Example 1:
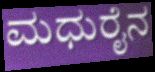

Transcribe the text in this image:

ಮಧುರೈನ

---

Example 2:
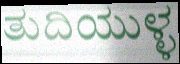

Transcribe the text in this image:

ತುದಿಯುಳ್ಳ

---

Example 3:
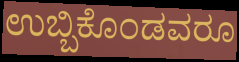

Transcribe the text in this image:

ಉಬ್ಬಿಕೊಂಡವರೂ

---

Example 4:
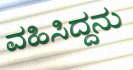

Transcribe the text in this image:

ವಹಿಸಿದ್ದನು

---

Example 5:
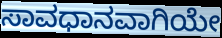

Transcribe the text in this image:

ಸಾವಧಾನವಾಗಿಯೇ